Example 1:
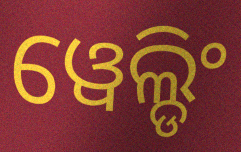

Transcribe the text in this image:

ୱେଲ୍ଡିଂ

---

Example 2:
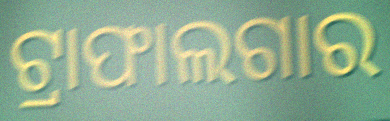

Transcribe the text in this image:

ଟ୍ରାଫାଲଗାର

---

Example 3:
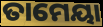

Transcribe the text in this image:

ତାମେୟା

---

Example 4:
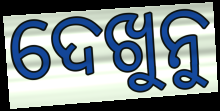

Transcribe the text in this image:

ଦେଖୁନୁ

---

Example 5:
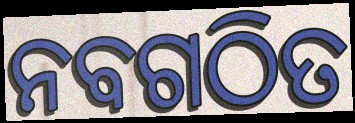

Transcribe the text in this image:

ନବଗଠିତ